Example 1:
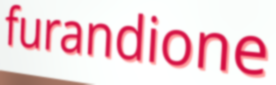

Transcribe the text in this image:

furandione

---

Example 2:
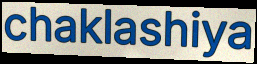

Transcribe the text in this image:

chaklashiya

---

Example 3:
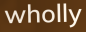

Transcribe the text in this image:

wholly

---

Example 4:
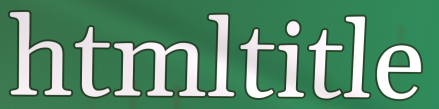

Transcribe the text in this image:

htmltitle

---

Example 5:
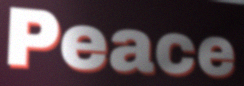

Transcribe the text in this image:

Peace